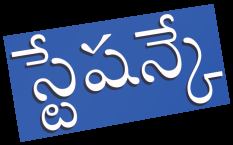
స్టేషన్కే